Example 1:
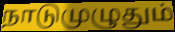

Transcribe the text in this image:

நாடுமுழுதும்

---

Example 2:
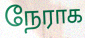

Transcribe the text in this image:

நேராக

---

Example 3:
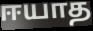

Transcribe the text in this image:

ஈயாத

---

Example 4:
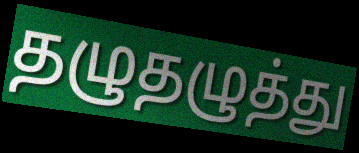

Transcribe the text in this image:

தழுதழுத்து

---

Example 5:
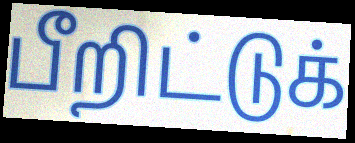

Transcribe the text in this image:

பீறிட்டுக்